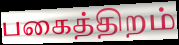
பகைத்திறம்